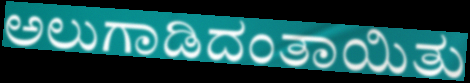
ಅಲುಗಾಡಿದಂತಾಯಿತು